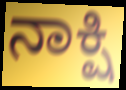
ನಾಕ್ಷಿ